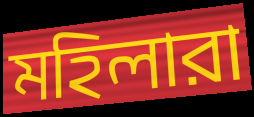
মহিলারা